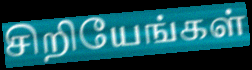
சிறியேங்கள்